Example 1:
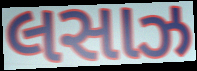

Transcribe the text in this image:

લસાઝ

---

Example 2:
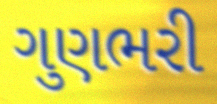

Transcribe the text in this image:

ગુણભરી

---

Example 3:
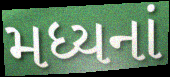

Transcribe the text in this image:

મધ્યનાં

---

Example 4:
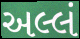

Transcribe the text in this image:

અલ્લં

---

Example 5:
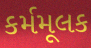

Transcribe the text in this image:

કર્મમૂલક